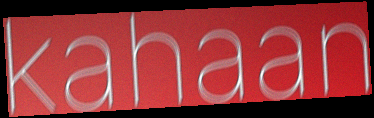
kahaan